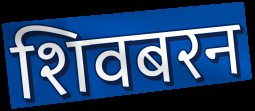
शिवबरन